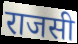
राजसी